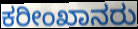
ಕರೀಂಖಾನರು